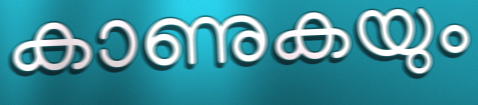
കാണുകയും